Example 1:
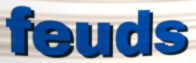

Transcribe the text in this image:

feuds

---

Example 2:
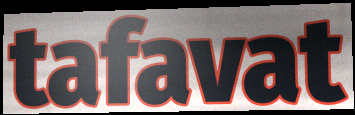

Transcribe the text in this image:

tafavat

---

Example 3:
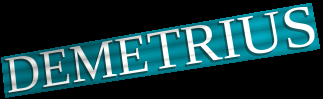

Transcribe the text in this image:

DEMETRIUS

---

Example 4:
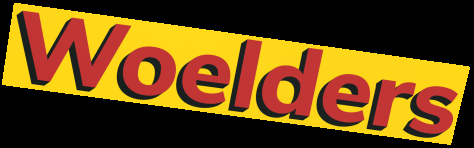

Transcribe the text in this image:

Woelders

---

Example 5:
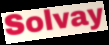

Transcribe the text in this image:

Solvay